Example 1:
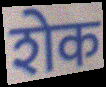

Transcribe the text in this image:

शेक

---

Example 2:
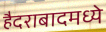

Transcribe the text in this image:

हैदराबादमध्ये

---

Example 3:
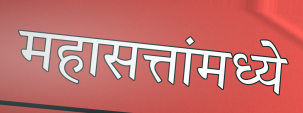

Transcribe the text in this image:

महासत्तांमध्ये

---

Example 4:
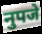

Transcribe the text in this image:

नुपजे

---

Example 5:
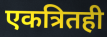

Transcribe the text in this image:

एकत्रितही